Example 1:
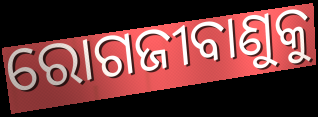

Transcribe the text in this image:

ରୋଗଜୀବାଣୁକୁ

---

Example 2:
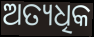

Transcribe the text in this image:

ଅତ୍ୟଧିକ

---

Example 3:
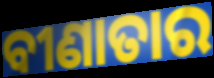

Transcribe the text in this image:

ବୀଣାତାର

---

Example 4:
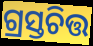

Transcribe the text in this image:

ଗ୍ରସ୍ତଚିତ୍ତ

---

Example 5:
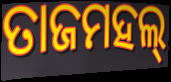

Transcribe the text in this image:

ତାଜମହଲ୍